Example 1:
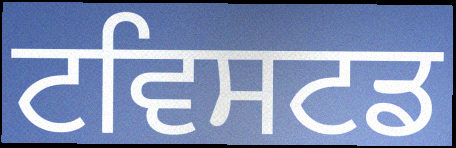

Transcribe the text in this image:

ਟਵਿਸਟਡ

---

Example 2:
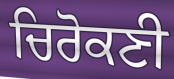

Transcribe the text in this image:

ਚਿਰੋਕਣੀ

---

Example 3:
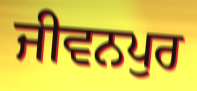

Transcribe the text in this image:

ਜੀਵਨਪੁਰ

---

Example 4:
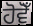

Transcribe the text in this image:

ਹੋਵੋਁ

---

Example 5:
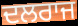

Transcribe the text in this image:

ਦਲਰਾਜ